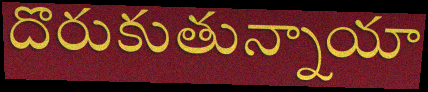
దొరుకుతున్నాయా